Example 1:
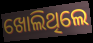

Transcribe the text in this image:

ଖୋଲିଥିଲେ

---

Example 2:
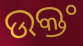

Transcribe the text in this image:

ଉକ୍ତଂ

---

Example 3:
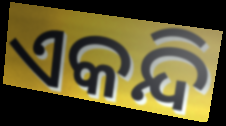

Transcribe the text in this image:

ଏକନ୍ଦି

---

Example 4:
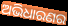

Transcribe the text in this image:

ଅଭିଧାରଣର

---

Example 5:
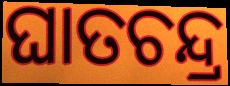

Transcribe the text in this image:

ଘାତଚନ୍ଦ୍ର